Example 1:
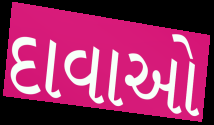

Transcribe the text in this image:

દાવાઓ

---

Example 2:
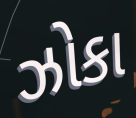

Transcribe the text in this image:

ઝોકા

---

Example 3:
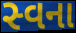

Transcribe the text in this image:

સ્વના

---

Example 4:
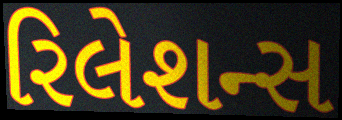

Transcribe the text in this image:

રિલેશન્સ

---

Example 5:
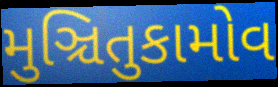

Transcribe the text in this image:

મુઞ્ચિતુકામોવ